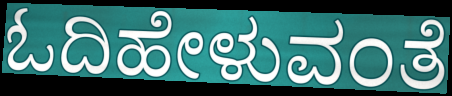
ಓದಿಹೇಳುವಂತೆ